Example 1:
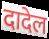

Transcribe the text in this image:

दादेल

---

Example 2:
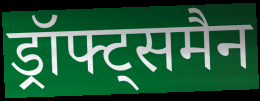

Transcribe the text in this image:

ड्रॉफ्ट्समैन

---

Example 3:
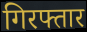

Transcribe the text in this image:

गिरफ्तार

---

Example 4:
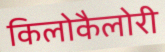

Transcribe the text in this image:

किलोकैलोरी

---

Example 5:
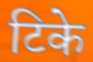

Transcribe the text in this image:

टिके